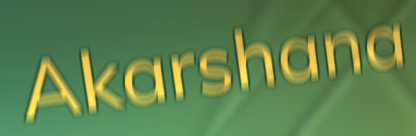
Akarshana